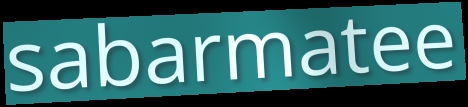
sabarmatee